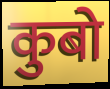
कुबो